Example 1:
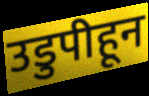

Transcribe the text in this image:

उडुपीहून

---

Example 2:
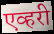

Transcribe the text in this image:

एव्हरी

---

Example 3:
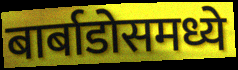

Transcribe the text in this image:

बार्बाडोसमध्ये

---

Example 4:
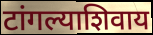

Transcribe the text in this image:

टांगल्याशिवाय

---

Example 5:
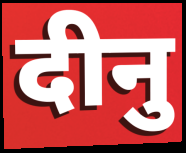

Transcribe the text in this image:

दीनु